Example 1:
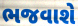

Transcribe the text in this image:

ભજવાશે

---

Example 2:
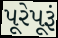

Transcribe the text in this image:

પૂરેપૂરૂં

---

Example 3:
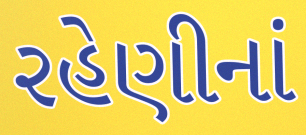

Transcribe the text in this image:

રહેણીનાં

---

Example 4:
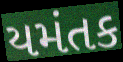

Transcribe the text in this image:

યમંતક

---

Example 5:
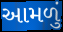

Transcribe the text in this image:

આમળું